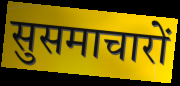
सुसमाचारों